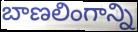
బాణలింగాన్ని